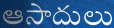
ఆసాదులు